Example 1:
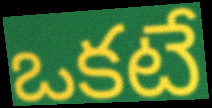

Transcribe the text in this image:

ఒకటే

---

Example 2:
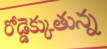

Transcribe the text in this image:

రోడ్డెక్కుతున్న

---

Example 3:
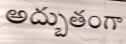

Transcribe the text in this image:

అద్బుతంగా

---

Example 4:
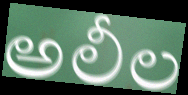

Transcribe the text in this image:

అలీల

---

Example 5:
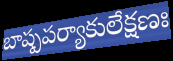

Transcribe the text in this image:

బాష్పపర్యాకులేక్షణః